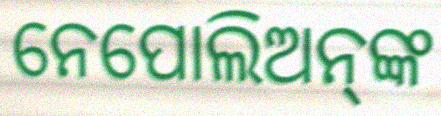
ନେପୋଲିଅନ୍‌ଙ୍କ